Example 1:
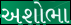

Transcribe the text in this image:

અશોભા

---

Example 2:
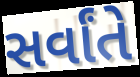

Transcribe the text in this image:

સર્વાંતે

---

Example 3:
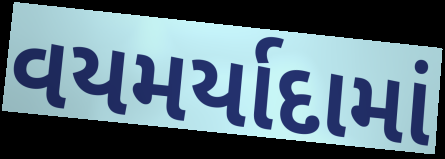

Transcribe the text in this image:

વયમર્યાદામાં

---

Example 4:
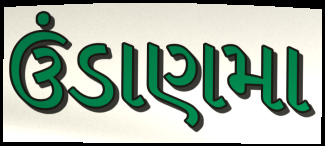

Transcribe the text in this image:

ઉંડાણમા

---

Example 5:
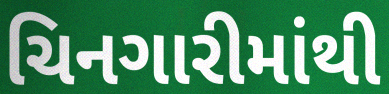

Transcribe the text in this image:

ચિનગારીમાંથી